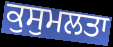
ਕੁਸੁਮਲਤਾ